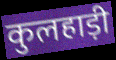
कुलहाड़ी